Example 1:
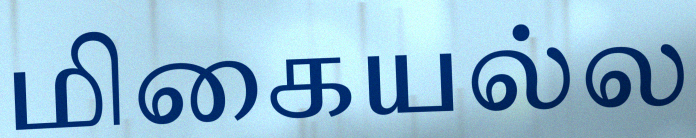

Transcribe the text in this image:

மிகையல்ல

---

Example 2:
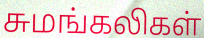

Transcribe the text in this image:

சுமங்கலிகள்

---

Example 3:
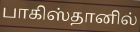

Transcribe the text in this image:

பாகிஸ்தானில்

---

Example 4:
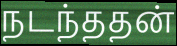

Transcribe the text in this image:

நடந்ததன்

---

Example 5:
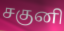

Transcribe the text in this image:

சகுனி